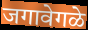
जगावेगळे